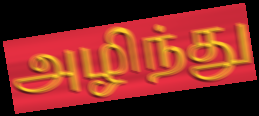
அழிந்து